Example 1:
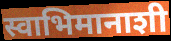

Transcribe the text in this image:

स्वाभिमानाशी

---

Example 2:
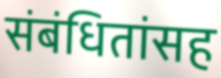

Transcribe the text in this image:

संबंधितांसह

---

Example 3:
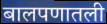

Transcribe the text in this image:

बालपणातली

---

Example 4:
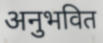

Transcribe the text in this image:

अनुभवित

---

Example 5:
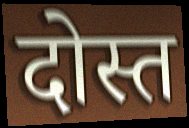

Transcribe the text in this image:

दोस्त